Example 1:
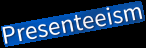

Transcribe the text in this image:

Presenteeism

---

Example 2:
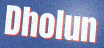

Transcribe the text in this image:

Dholun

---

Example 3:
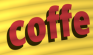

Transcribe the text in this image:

coffe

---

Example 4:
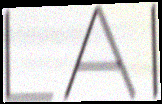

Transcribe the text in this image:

LAI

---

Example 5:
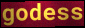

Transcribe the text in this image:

godess